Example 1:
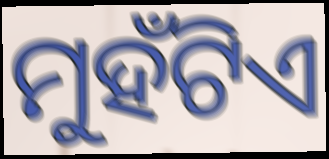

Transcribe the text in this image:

ମୁହଁଟିଏ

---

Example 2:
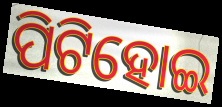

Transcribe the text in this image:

ପିଟିହୋଇ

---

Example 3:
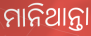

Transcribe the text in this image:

ମାନିଥାନ୍ତା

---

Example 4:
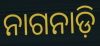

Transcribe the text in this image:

ନାଗନାଡ଼ି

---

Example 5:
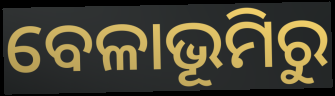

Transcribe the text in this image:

ବେଳାଭୂମିରୁ